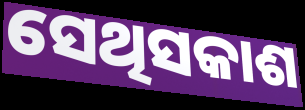
ସେଥିସକାଶ